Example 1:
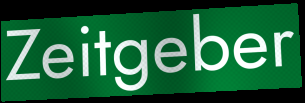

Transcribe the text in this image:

Zeitgeber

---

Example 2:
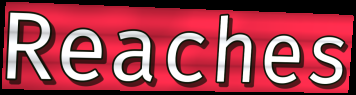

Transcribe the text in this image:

Reaches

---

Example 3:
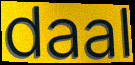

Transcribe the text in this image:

daal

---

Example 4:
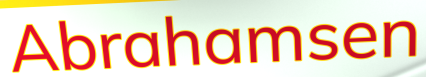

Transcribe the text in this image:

Abrahamsen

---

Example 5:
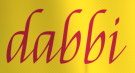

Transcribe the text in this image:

dabbi